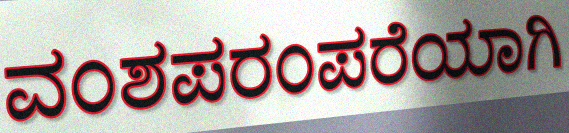
ವಂಶಪರಂಪರೆಯಾಗಿ